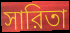
সারিতা